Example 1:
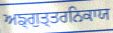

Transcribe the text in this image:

ਅਙ੍ਗੁਤ੍ਤਰਨਿਕਾਯ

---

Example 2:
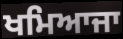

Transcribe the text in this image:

ਖਮਿਆਜਾ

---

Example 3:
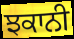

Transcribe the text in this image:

ਝਕਾਨੀ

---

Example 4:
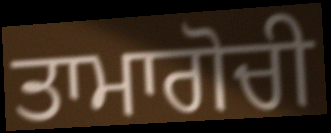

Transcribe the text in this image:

ਤਾਮਾਗੋਚੀ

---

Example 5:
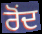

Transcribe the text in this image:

ਰੋਂਦ